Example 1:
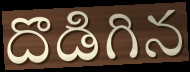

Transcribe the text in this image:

దొడిగిన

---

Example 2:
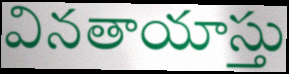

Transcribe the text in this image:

వినతాయాస్తు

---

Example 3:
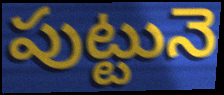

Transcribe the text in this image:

పుట్టునె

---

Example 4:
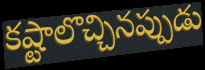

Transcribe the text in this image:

కష్టాలొచ్చినప్పుడు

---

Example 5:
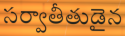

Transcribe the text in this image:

సర్వాతీతుడైన